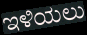
ಇಳಿಯಲು